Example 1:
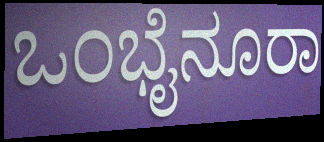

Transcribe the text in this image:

ಒಂಭೈನೂರಾ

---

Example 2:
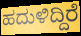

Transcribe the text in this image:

ಹದುಳಿದ್ದಿರೆ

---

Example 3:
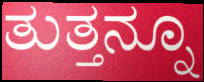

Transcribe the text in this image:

ತುತ್ತನ್ನೂ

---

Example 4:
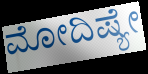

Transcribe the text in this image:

ಮೋದಿಷ್ಯೇ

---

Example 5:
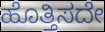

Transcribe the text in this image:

ಹೊತ್ತಿಸದೇ